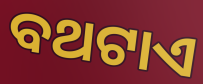
ବଥଟାଏ